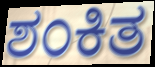
ಶಂಕಿತ